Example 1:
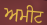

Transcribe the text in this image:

ਅਮੀਟ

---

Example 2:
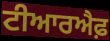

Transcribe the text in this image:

ਟੀਆਰਐਫ਼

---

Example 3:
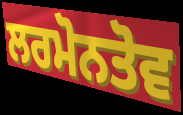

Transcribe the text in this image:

ਲਰਮੋਨਤੋਵ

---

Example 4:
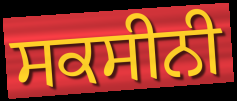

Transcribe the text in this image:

ਸਕਸੀਨੀ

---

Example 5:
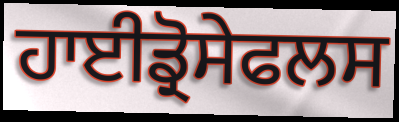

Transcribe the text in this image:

ਹਾਈਡ੍ਰੋਸੇਫਲਸ